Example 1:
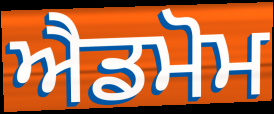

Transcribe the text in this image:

ਐਡਮੋਮ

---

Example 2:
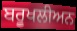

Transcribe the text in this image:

ਬਰੂਖਲੀਅਨ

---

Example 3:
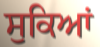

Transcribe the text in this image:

ਸੁਕਿਆਂ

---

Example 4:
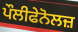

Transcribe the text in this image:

ਪੌਲੀਫੇਨੋਲਜ਼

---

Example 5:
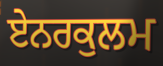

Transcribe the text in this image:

ਏਨਰਕੁਲਮ